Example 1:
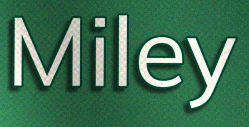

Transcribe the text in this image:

Miley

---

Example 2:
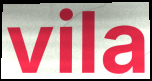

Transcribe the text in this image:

vila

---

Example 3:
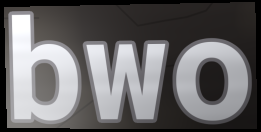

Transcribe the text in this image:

bwo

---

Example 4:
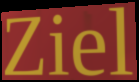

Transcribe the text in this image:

Ziel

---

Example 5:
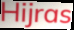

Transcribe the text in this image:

Hijras